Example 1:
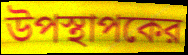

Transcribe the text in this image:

উপস্থাপকের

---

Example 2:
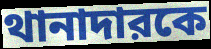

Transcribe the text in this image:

থানাদারকে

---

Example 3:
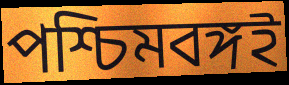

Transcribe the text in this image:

পশ্চিমবঙ্গই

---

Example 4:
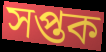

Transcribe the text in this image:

সপ্তক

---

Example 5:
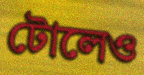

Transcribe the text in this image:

টোলেও